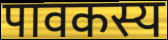
पावकस्य